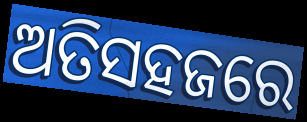
ଅତିସହଜରେ